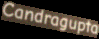
Candragupta